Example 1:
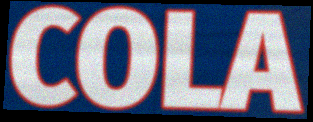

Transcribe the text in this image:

COLA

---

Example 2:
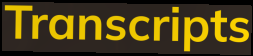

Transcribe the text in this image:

Transcripts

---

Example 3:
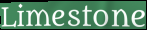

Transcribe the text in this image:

Limestone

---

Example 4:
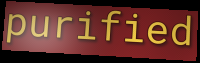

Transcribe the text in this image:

purified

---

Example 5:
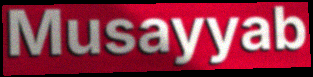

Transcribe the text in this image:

Musayyab